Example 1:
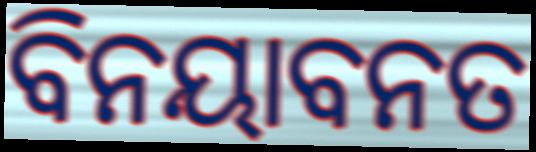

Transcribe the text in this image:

ବିନୟାବନତ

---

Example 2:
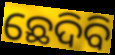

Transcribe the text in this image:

ଛେଦିବି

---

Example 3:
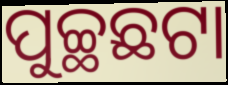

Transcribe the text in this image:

ପୁଚ୍ଛଛଟା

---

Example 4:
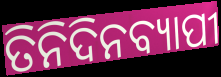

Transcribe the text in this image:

ତିନିଦିନବ୍ୟାପୀ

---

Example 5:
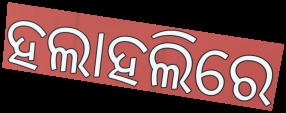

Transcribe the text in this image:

ହଲାହଲିରେ